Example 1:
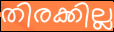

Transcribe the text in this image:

തിരക്കില്ല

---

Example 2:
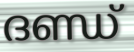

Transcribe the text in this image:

ദണ്ഡ്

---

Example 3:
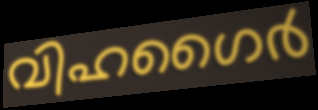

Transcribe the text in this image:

വിഹഗൈർ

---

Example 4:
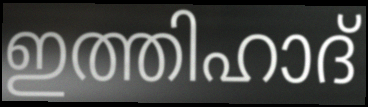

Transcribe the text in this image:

ഇത്തിഹാദ്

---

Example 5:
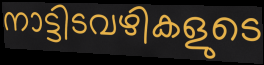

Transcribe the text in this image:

നാട്ടിടവഴികളുടെ